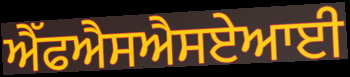
ਐੱਫਐਸਐਸਏਆਈ